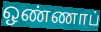
ஒண்ணாப்